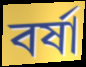
বৰ্ষা